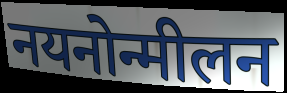
नयनोन्मीलन